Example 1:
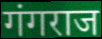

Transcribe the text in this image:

गंगराज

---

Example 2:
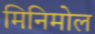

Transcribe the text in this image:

मिनिमोल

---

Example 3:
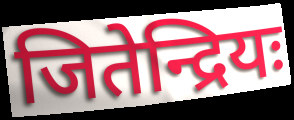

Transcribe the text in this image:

जितेन्द्रियः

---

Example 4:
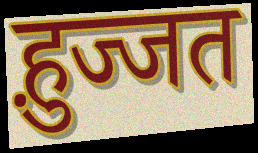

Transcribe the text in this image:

ह़ुज्जत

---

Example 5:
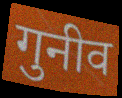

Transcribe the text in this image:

गुनीव